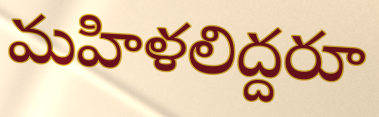
మహిళలిద్దరూ